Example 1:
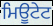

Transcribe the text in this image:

ਮਿਊਟੇਟ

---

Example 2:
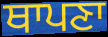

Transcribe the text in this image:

ਥਾਪਣਾ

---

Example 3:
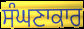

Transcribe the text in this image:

ਸੰਘਣਾਕਾਰ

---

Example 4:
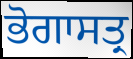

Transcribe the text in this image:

ਭੋਗਾਸਤ੍ਰ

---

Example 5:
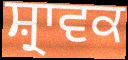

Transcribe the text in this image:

ਸ਼੍ਰਾਵਕ